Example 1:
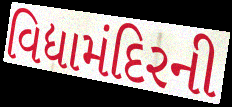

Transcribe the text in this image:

વિદ્યામંદિરની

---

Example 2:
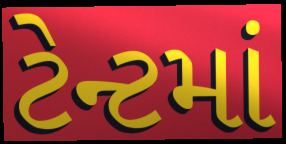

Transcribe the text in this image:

ટેન્ટમાં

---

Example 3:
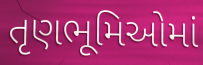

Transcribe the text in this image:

તૃણભૂમિઓમાં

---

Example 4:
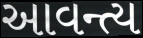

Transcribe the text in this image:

આવન્ત્ય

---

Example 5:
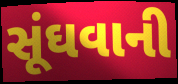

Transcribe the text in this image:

સૂંઘવાની